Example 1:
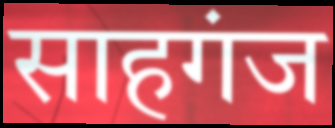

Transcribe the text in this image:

साहगंज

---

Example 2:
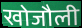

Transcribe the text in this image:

खोजौली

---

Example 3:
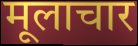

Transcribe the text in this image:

मूलाचार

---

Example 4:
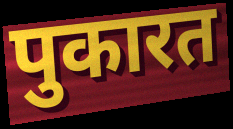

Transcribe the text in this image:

पुकारत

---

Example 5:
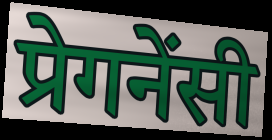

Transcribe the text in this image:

प्रेगनेंसी